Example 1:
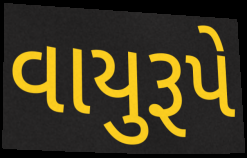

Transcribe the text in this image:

વાયુરૂપે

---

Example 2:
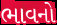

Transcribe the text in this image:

ભાવનો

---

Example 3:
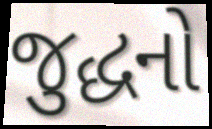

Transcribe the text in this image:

જુદ્ધનો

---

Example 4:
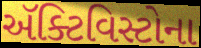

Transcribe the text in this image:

ઍક્ટિવિસ્ટોના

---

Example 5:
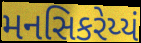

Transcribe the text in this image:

મનસિકરેય્યં